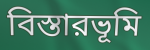
বিস্তারভূমি